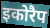
इकोरैप